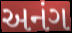
અનંગ